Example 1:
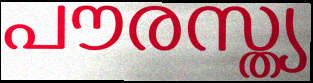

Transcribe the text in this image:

പൗരസ്ത്യ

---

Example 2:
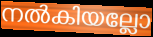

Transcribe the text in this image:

നൽകിയല്ലോ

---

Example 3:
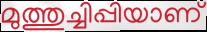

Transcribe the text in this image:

മുത്തുച്ചിപ്പിയാണ്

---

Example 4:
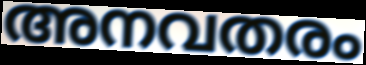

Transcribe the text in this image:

അനവതരം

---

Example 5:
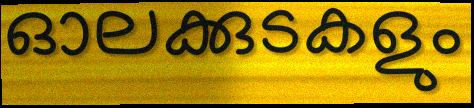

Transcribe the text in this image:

ഓലക്കുടകളും